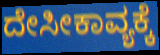
ದೇಸೀಕಾವ್ಯಕ್ಕೆ